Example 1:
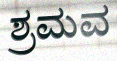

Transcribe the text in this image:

ಶ್ರಮವ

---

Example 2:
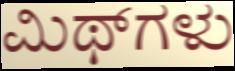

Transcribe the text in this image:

ಮಿಥ್‌ಗಳು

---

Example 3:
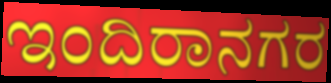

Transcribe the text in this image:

ಇಂದಿರಾನಗರ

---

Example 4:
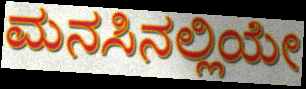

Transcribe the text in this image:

ಮನಸಿನಲ್ಲಿಯೇ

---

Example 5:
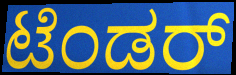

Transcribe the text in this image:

ಟೆಂಡರ್